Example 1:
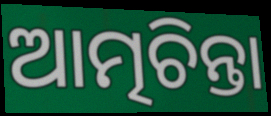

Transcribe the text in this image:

ଆତ୍ମଚିନ୍ତା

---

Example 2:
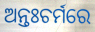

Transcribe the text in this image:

ଅନ୍ତଃଚର୍ମରେ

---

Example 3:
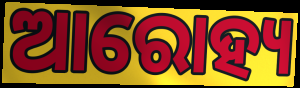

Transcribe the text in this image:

ଆରୋହ୍ୟ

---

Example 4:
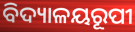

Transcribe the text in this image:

ବିଦ୍ୟାଳୟରୂପୀ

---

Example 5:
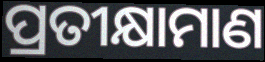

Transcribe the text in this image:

ପ୍ରତୀକ୍ଷାମାଣ